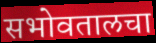
सभोवतालचा